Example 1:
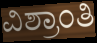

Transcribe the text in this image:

ವಿಶ್ರಾಂತಿ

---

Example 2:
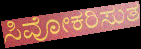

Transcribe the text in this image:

ಸಿವೋಕರಿಸುತ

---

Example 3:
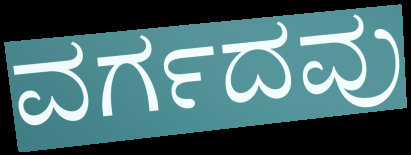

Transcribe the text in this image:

ವರ್ಗದವು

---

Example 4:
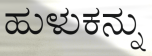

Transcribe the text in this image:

ಹುಳುಕನ್ನು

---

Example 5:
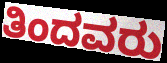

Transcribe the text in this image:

ತಿಂದವರು